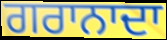
ਗਰਾਨਾਦਾ